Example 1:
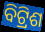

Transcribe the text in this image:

ବିଟ୍ରିଶ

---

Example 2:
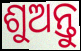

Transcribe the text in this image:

ଶୁଅନ୍ତୁ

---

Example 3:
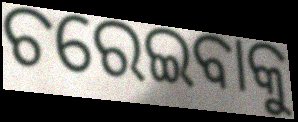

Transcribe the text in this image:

ଚରେଇବାକୁ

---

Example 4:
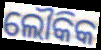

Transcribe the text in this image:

ଲୌକିକ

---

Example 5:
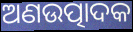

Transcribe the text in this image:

ଅଣଉତ୍ପାଦକ